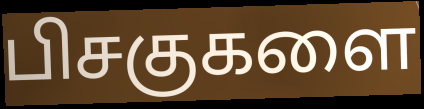
பிசகுகளை